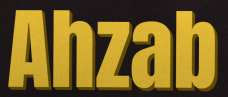
Ahzab